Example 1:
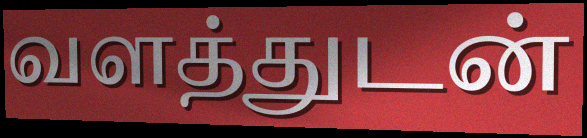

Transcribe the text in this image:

வளத்துடன்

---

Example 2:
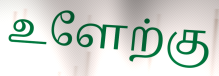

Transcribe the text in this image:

உளேற்கு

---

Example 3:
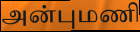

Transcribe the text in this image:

அன்புமணி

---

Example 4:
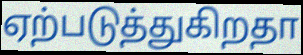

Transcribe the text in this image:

ஏற்படுத்துகிறதா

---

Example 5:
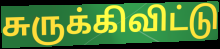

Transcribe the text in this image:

சுருக்கிவிட்டு